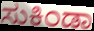
ಸುಕಿಂಡಾ